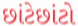
છાંટેછાંટો